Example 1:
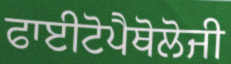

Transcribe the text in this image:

ਫਾਈਟੋਪੈਥੋਲੋਜੀ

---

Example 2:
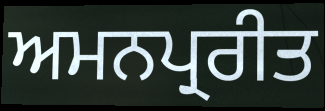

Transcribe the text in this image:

ਅਮਨਪ੍ਰਰੀਤ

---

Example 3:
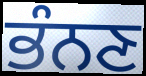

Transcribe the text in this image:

ਭੰਨਣ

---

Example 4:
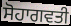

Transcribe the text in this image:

ਸੋਹਾਗਵਤੀ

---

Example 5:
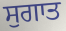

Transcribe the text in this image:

ਸੁਗਾਤ